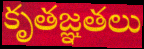
కృతజ్ఞతలు